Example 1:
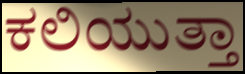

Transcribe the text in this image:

ಕಲಿಯುತ್ತಾ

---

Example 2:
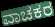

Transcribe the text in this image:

ವಾಚಕರ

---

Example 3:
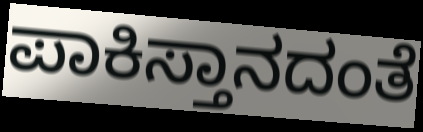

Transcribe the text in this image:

ಪಾಕಿಸ್ತಾನದಂತೆ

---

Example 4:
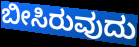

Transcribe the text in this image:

ಬೀಸಿರುವುದು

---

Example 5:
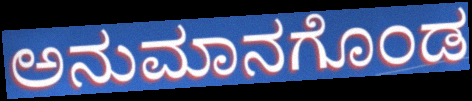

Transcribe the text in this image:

ಅನುಮಾನಗೊಂಡ